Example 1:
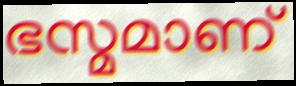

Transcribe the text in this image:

ഭസ്മമാണ്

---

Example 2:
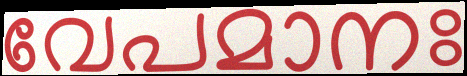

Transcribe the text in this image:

വേപമാനഃ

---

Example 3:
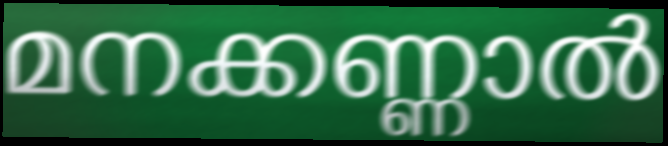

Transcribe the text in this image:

മനക്കണ്ണാൽ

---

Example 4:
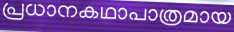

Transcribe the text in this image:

പ്രധാനകഥാപാത്രമായ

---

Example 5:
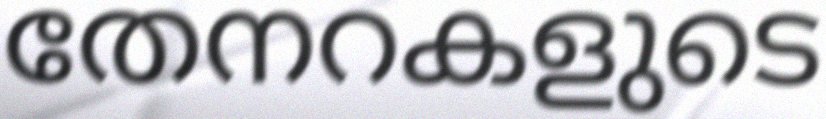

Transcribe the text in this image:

തേനറകളുടെ